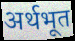
अर्थभूत